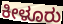
ಕೀಳೂರು